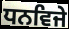
ਧਨਵਿਜੇ